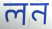
লন